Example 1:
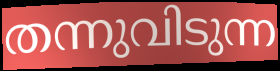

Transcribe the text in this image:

തന്നുവിടുന്ന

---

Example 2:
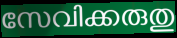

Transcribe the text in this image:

സേവിക്കരുതു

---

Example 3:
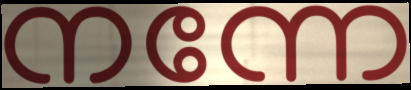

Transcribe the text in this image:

നന്നേ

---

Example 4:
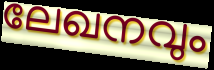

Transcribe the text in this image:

ലേഖനവും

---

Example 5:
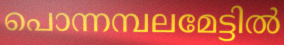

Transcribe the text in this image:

പൊന്നമ്പലമേട്ടിൽ